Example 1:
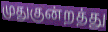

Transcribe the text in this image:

முதுகுன்றத்து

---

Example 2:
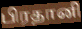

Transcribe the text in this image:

பிரதானி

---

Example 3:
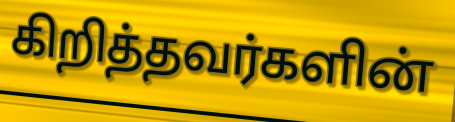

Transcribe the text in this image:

கிறித்தவர்களின்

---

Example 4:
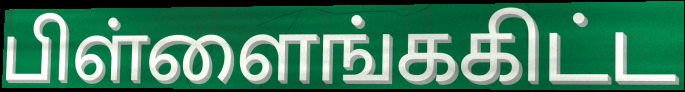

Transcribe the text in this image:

பிள்ளைங்ககிட்ட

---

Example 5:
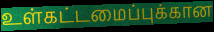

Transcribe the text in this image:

உள்கட்டமைப்புக்கான